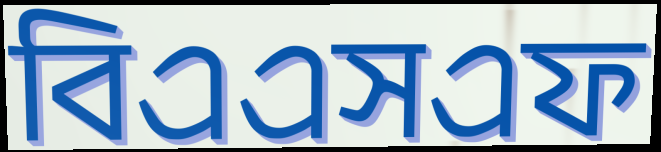
বিএএসএফ